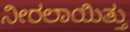
ನೀರಲಾಯಿತ್ತು